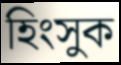
হিংসুক